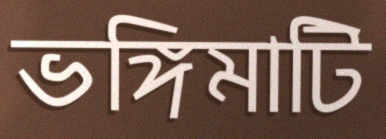
ভঙ্গিমাটি